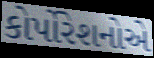
કોર્પોરેશનોએ